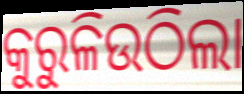
କୁରୁଳିଉଠିଲା